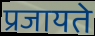
प्रजायते